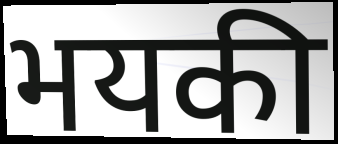
भयकी